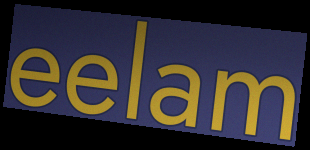
eelam